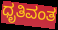
ಧೃತಿವಂತ